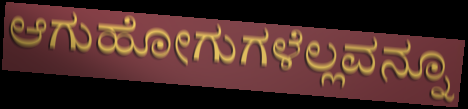
ಆಗುಹೋಗುಗಳೆಲ್ಲವನ್ನೂ